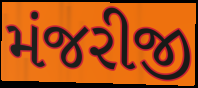
મંજરીજી